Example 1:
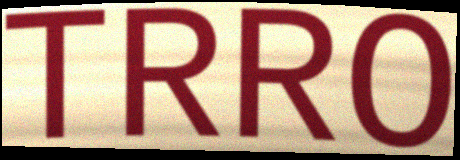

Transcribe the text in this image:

TRRO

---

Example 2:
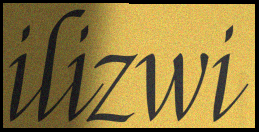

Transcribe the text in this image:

ilizwi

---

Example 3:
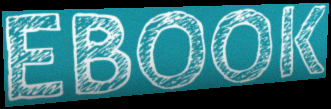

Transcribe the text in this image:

EBOOK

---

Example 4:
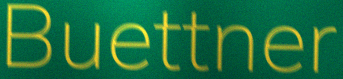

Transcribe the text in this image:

Buettner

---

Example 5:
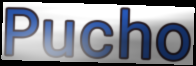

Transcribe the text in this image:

Pucho